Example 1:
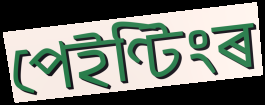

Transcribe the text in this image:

পেইণ্টিংৰ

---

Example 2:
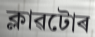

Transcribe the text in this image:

ক্লাৱটোৰ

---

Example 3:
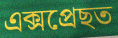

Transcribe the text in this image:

এক্সপ্ৰেছত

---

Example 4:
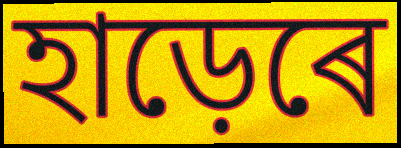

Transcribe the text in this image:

হাড়েৰে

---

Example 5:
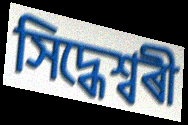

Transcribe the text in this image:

সিদ্ধেশ্বৰী